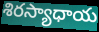
శిరస్యాధాయ